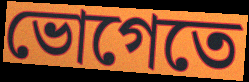
ভোগেতে